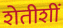
शेतीशीं